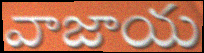
వాజాయ